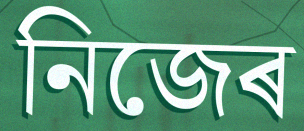
নিজেৰ